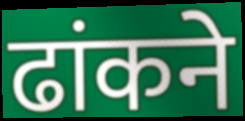
ढांकने